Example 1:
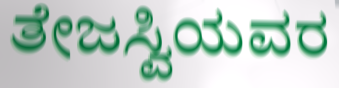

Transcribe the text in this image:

ತೇಜಸ್ವಿಯವರ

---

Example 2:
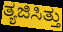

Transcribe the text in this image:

ತ್ಯಜಿಸಿತ್ತು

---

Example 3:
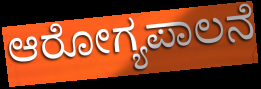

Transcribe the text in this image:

ಆರೋಗ್ಯಪಾಲನೆ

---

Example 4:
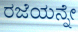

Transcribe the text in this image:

ರಜೆಯನ್ನೇ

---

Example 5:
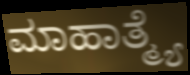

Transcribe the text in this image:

ಮಾಹಾತ್ಮ್ಯೆ